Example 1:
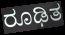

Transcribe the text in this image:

ರೂಢಿತ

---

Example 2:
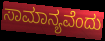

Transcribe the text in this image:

ಸಾಮಾನ್ಯವೆಂದು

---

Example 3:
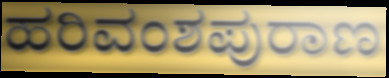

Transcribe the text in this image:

ಹರಿವಂಶಪುರಾಣ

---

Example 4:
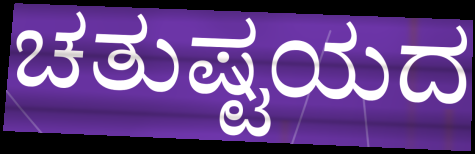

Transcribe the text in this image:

ಚತುಷ್ಟಯದ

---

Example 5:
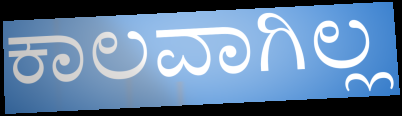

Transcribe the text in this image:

ಕಾಲವಾಗಿಲ್ಲ